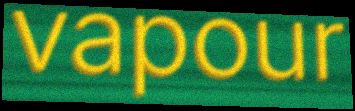
vapour